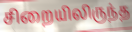
சிறையிலிருந்த